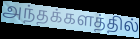
அந்தக்களத்தில்